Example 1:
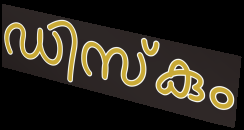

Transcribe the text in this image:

ഡിസ്കും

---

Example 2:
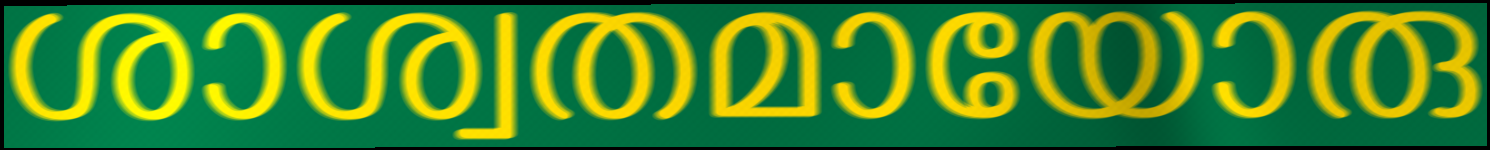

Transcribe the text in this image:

ശാശ്വതമായോരു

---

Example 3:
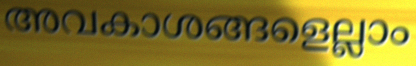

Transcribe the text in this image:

അവകാശങ്ങളെല്ലാം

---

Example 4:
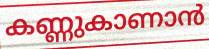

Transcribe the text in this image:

കണ്ണുകാണാൻ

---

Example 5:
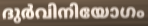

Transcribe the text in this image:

ദുർവിനിയോഗം